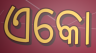
ଏକୋ